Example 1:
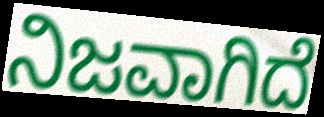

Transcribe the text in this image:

ನಿಜವಾಗಿದೆ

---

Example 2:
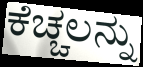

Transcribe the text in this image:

ಕೆಚ್ಚಲನ್ನು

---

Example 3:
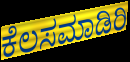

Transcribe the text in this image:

ಕೆಲಸಮಾಡಿರಿ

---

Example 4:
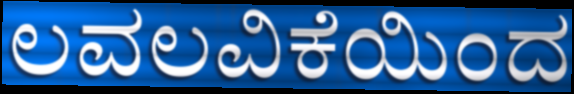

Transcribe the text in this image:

ಲವಲವಿಕೆಯಿಂದ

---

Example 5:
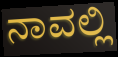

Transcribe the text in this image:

ನಾವಲ್ಲಿ